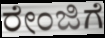
ರೇಂಜಿಗೆ